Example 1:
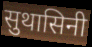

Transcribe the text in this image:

सुथासिनी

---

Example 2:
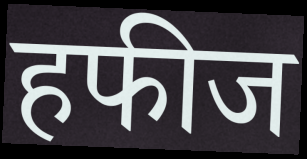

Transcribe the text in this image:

हफीज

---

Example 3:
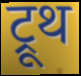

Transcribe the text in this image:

ट्रूथ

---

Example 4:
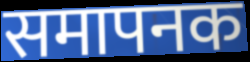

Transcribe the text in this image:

समापनक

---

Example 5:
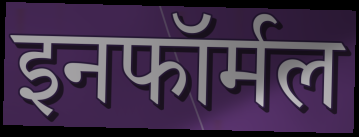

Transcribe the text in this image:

इनफॉर्मल